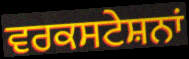
ਵਰਕਸਟੇਸ਼ਨਾਂ